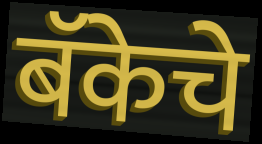
बॅकेचे